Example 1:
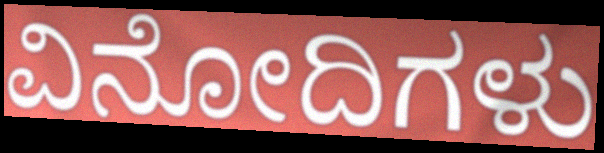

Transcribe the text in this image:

ವಿನೋದಿಗಳು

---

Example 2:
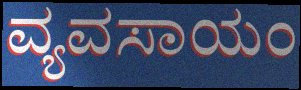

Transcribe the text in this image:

ವ್ಯವಸಾಯಂ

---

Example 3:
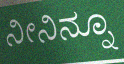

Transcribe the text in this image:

ನೀನಿನ್ನೂ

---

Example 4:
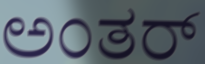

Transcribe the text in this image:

ಅಂತರ್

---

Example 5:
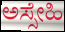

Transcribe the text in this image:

ಅಸ್ಸೇಹಿ